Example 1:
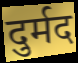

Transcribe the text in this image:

दुर्मद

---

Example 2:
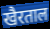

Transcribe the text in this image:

खैरताल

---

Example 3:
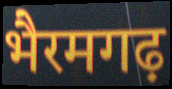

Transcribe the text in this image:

भैरमगढ़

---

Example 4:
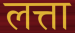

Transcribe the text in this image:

लत्ता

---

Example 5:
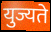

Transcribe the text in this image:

युज्यते